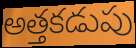
అత్తకడుపు